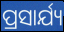
ପ୍ରସାର୍ଯ୍ୟ